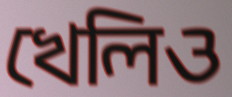
খেলিও